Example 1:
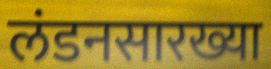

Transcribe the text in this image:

लंडनसारख्या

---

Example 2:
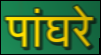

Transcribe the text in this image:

पांघरे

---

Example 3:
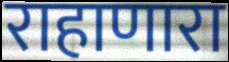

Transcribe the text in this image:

राहाणारा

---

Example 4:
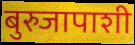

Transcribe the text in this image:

बुरुजापाशी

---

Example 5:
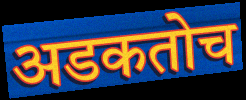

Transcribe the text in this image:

अडकतोच